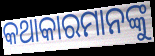
କଥାକାରମାନଙ୍କୁ